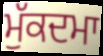
ਮੁੱਕਦਮਾ